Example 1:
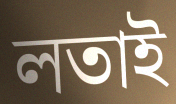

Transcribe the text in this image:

লতাই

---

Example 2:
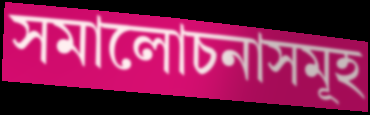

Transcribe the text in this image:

সমালোচনাসমূহ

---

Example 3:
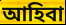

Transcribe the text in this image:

আহিবা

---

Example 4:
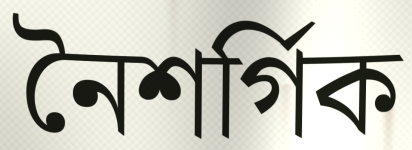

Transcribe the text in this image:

নৈশৰ্গিক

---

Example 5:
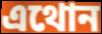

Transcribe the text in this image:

এথোন